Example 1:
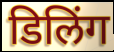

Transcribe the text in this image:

डिलिंग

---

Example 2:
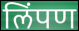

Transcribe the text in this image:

लिंपण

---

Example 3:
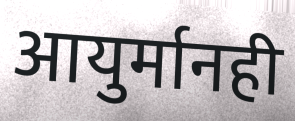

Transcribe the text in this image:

आयुर्मानही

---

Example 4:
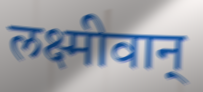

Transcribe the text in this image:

लक्ष्मीवान्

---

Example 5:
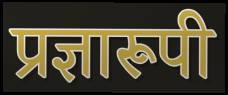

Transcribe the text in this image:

प्रज्ञारूपी